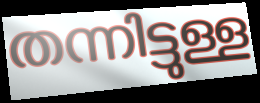
തന്നിട്ടുള്ള